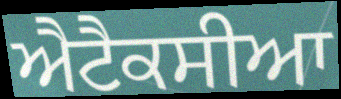
ਐਟੈਕਸੀਆ